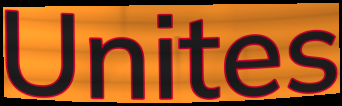
Unites